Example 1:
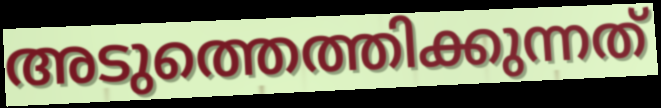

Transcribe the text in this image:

അടുത്തെത്തിക്കുന്നത്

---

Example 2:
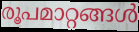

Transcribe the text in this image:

രൂപമാറ്റങ്ങൾ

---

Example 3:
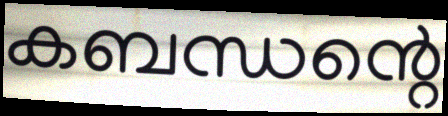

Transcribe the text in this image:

കബന്ധന്റെ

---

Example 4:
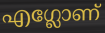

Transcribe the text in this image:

എഗ്ലോണ്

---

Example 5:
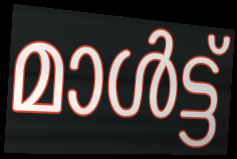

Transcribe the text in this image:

മാൾട്ട്